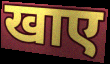
खाए